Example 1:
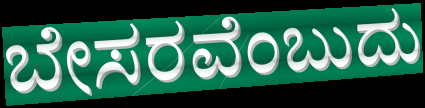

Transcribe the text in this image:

ಬೇಸರವೆಂಬುದು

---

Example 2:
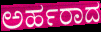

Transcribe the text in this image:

ಅರ್ಹರಾದ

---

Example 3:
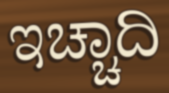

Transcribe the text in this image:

ಇಚ್ಚಾದಿ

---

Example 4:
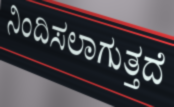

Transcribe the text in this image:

ನಿಂದಿಸಲಾಗುತ್ತದೆ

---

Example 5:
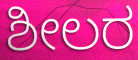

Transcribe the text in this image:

ಶೀಲರ